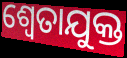
ଶ୍ଵେତାଯୁକ୍ତ